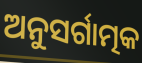
ଅନୁସର୍ଗାତ୍ମକ